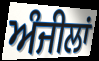
ਅੰਜੀਲਾਂ